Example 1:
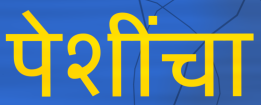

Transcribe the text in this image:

पेशींचा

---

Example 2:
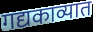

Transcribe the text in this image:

गद्यकाव्यात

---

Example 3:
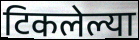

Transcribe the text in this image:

टिकलेल्या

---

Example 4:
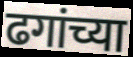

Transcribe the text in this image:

ढगांच्या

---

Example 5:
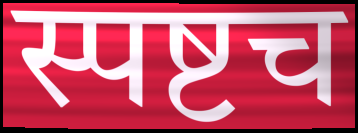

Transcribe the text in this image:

स्पष्टच